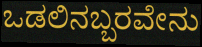
ಒಡಲಿನಬ್ಬರವೇನು